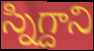
స్నిగ్దాని